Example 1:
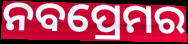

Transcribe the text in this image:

ନବପ୍ରେମର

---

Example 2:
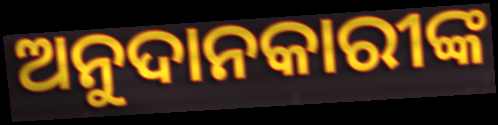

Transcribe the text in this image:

ଅନୁଦାନକାରୀଙ୍କ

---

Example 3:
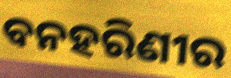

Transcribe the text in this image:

ବନହରିଣୀର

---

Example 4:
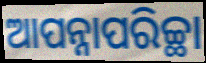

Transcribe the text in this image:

ଆପନ୍ନାପରିଚ୍ଛା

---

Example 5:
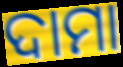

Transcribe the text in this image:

ଦାମା